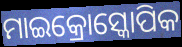
ମାଇକ୍ରୋସ୍କୋପିକ